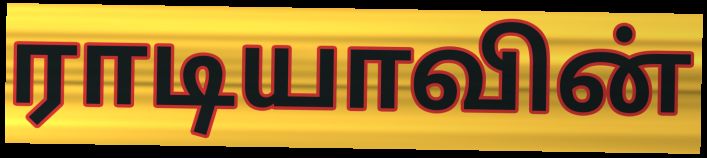
ராடியாவின்